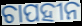
ଚାପହୀନ